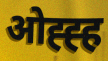
ओह्ह्ह